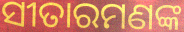
ସୀତାରମଣଙ୍କ